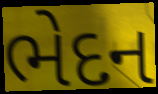
ભેદન